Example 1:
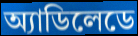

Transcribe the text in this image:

অ্যাডিলেডে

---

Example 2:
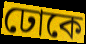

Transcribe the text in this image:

ঢোকে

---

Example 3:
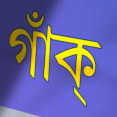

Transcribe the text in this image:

গাঁক্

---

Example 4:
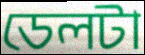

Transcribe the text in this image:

ডেলটা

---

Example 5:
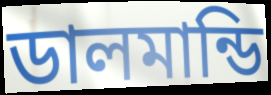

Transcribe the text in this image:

ডালমান্ডি